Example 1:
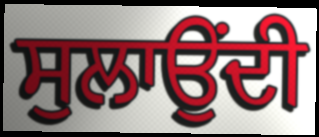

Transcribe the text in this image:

ਸੁਲਾਉਂਦੀ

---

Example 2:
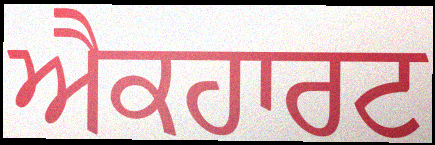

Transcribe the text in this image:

ਐਕਹਾਰਟ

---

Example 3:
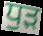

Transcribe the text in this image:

ਧੁੜ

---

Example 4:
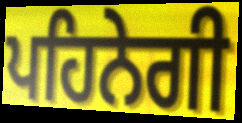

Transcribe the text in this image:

ਪਹਿਨੇਗੀ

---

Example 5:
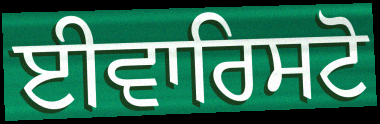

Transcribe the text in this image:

ਈਵਾਰਿਸਟੋ